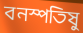
বনস্পতিষু